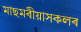
মাছমৰীয়াসকলৰ